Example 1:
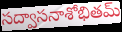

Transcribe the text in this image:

సద్వాసనాశోభితమ్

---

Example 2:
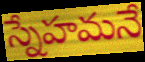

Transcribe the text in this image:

స్నేహమనే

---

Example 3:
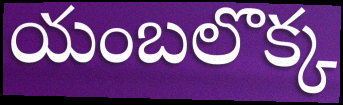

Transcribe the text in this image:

యంబలొక్క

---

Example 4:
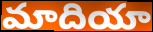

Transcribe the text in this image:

మాదియా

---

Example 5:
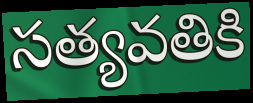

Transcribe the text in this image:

సత్యవతికి